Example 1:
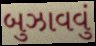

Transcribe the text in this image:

બુઝાવવું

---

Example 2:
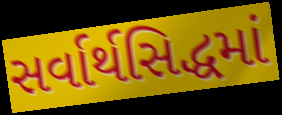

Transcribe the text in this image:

સર્વાર્થસિદ્ધમાં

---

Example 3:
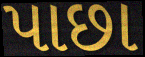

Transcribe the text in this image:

પાછા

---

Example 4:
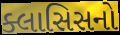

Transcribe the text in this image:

ક્લાસિસનો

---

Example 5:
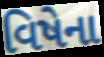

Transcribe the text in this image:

વિષેના